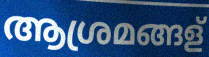
ആശ്രമങ്ങള്